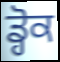
ਡ੍ਹੋਕ